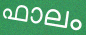
ഫാലം